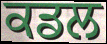
ਕਡਲ